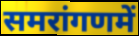
समरांगणमें